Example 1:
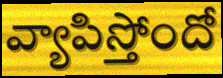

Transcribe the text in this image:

వ్యాపిస్తోందో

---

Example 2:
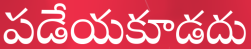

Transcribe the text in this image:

పడేయకూడదు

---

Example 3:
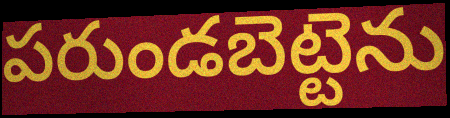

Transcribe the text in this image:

పరుండబెట్టెను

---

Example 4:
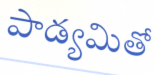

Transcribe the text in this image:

పాడ్యమితో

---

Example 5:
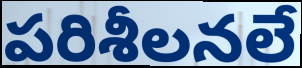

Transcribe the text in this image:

పరిశీలనలే